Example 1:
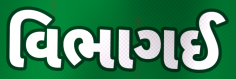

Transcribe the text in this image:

વિભાગઈ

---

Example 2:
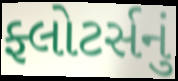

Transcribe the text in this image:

ફ્લોટર્સનું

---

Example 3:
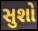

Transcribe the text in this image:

સુશો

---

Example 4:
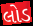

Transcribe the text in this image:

લોડ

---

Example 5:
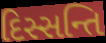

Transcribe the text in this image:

દિસ્સન્તિ